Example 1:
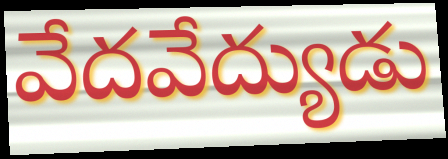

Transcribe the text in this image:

వేదవేద్యుడు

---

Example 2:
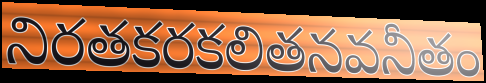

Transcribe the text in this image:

నిరతకరకలితనవనీతం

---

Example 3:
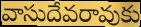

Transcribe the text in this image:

వాసుదేవరావుకు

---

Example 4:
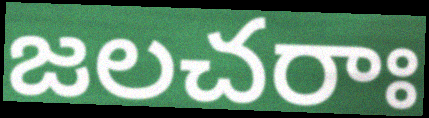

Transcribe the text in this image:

జలచరాః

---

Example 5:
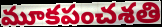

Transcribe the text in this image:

మూకపంచశతి